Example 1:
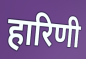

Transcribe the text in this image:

हारिणी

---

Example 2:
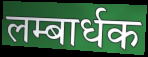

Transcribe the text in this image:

लम्बार्धक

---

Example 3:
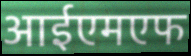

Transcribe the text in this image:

आईएमएफ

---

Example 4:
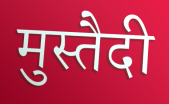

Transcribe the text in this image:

मुस्तैदी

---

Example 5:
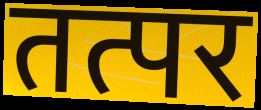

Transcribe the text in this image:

तत्पर